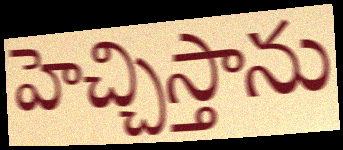
హెచ్చిస్తాను